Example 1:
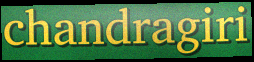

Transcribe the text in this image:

chandragiri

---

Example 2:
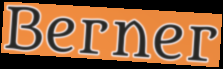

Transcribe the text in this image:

Berner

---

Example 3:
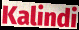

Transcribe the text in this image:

Kalindi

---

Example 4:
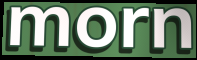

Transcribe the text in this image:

morn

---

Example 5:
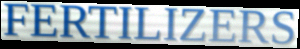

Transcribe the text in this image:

FERTILIZERS